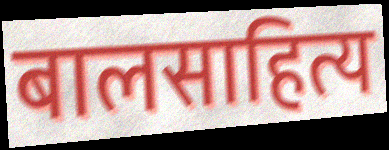
बालसाहित्य